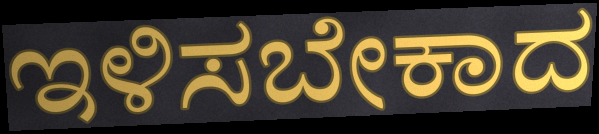
ಇಳಿಸಬೇಕಾದ